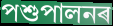
পশুপালনৰ